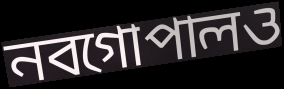
নবগোপালও